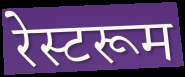
रेस्टरूम